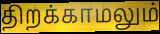
திறக்காமலும்